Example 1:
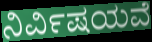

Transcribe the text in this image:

ನಿರ್ವಿಷಯವೆ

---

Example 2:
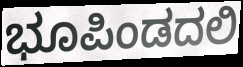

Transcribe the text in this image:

ಭೂಪಿಂಡದಲಿ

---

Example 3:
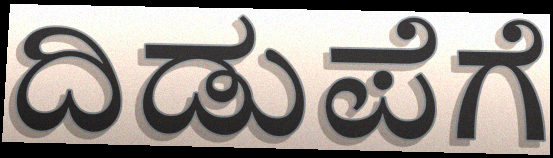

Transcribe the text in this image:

ದಿಡುಪೆಗೆ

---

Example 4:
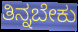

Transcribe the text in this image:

ತಿನ್ನಬೇಕು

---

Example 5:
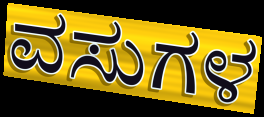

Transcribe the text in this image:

ವಸುಗಳ